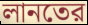
লানতের